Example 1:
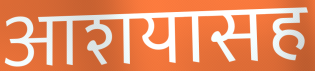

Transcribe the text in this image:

आशयासह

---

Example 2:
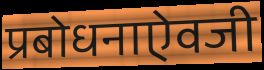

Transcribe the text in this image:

प्रबोधनाऐवजी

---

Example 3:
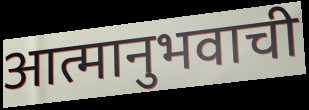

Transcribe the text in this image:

आत्मानुभवाची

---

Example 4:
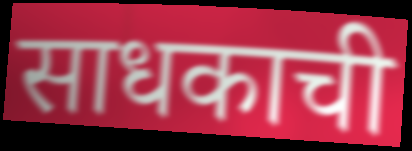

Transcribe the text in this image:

साधकाची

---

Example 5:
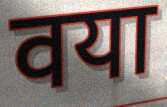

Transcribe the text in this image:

वया